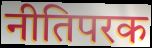
नीतिपरक